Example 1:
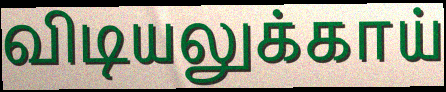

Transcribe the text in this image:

விடியலுக்காய்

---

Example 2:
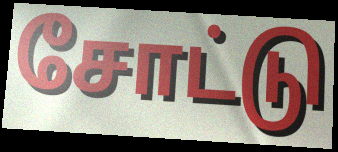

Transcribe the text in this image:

சோட்டு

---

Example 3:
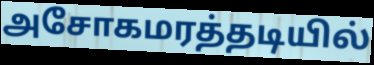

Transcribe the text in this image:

அசோகமரத்தடியில்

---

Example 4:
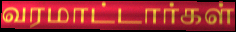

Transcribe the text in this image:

வரமாட்டார்கள்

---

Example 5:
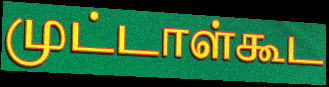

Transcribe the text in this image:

முட்டாள்கூட